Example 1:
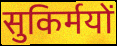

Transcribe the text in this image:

सुकिर्मयों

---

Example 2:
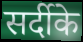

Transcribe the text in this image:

सर्दीके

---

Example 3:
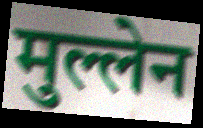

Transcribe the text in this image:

मुल्लेन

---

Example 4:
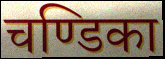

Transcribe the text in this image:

चण्डिका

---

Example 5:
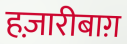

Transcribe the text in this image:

हज़ारीबाग़